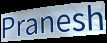
Pranesh